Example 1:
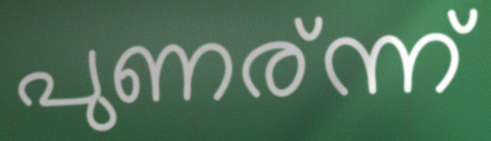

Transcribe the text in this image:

പുണര്ന്ന്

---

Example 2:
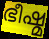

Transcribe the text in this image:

ഭീഷ്മ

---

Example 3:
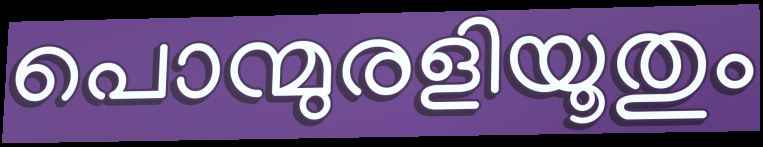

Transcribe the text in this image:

പൊന്മുരളിയൂതും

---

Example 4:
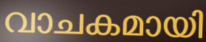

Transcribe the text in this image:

വാചകമായി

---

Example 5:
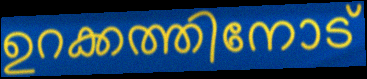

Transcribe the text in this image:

ഉറക്കത്തിനോട്